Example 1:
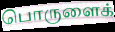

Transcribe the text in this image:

பொருளைக்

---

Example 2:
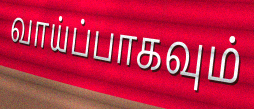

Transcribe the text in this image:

வாய்ப்பாகவும்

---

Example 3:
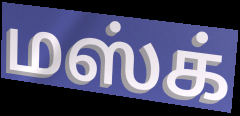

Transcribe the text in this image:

மஸ்க்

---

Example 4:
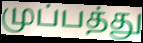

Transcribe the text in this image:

முப்பத்து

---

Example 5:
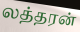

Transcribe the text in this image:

லத்தரன்